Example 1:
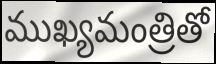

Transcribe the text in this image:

ముఖ్యమంత్రితో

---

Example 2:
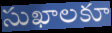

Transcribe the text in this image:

సుఖాలకూ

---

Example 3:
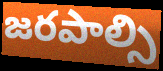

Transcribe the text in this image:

జరపాల్సి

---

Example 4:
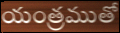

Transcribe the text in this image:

యంత్రముతో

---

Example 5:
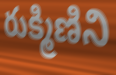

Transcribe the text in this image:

రుక్మిణిని